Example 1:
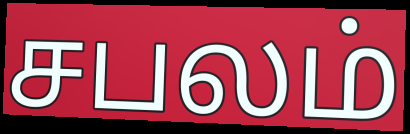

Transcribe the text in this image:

சபலம்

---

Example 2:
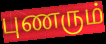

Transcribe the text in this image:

புணரும்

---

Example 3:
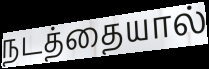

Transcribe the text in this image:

நடத்தையால்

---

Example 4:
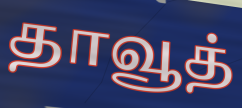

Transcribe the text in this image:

தாவூத்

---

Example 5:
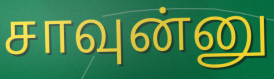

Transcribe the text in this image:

சாவுன்னு